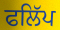
ਫਲਿੱਪ